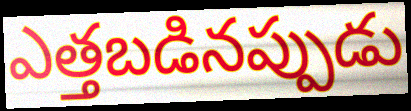
ఎత్తబడినప్పుడు